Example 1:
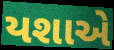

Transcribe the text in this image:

યશાએ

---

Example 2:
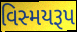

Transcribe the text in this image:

વિસ્મયરૂપ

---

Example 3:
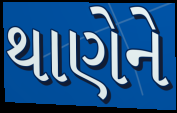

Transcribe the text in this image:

થાણેને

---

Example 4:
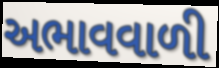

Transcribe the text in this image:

અભાવવાળી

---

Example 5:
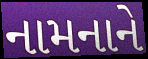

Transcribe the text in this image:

નામનાને